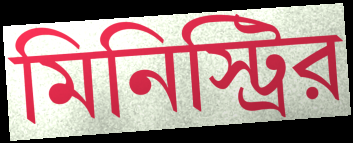
মিনিস্ট্রির